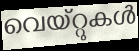
വെയ്റ്റുകൾ